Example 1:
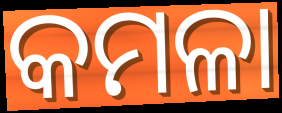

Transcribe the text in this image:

କମଳା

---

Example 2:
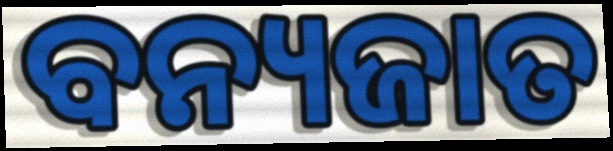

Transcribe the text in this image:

ବନ୍ୟଜାତ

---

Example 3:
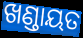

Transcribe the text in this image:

ଖଣ୍ଡାୟତ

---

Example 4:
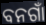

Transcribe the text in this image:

ବନଗାଁ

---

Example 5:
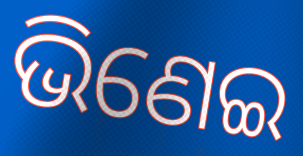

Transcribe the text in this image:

ଭିଣେଇ